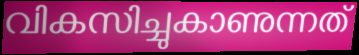
വികസിച്ചുകാണുന്നത്